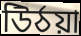
উিঠয়া